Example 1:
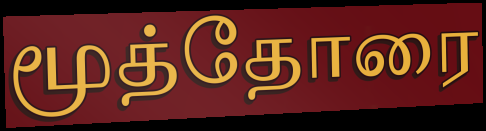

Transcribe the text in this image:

மூத்தோரை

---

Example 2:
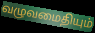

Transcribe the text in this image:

வழுவமைதியும்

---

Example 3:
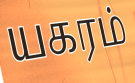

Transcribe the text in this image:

யகரம்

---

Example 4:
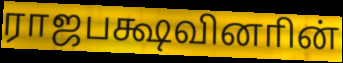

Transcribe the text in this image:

ராஜபக்ஷவினரின்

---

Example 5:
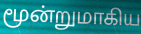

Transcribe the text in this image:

மூன்றுமாகிய